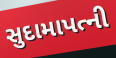
સુદામાપત્ની